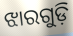
ଝାରଗୁଡ଼ି